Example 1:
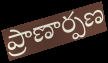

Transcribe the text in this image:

ప్రాణార్పణ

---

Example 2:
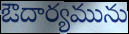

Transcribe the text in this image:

ఔదార్యమును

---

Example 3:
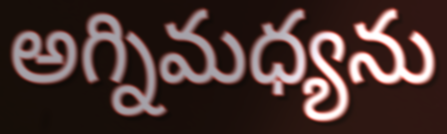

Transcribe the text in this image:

అగ్నిమధ్యను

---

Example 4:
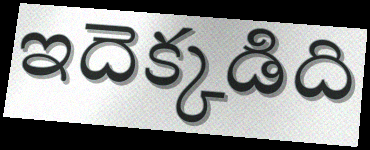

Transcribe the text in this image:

ఇదెక్కడిది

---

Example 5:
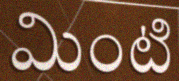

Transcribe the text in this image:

మింటి